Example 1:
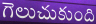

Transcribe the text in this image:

గెలుచుకుంది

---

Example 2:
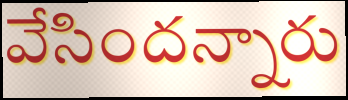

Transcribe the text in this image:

వేసిందన్నారు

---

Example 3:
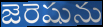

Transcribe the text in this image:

జెరెషును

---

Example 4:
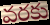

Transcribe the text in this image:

వరకు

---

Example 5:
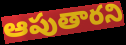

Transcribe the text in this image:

ఆపుతారని